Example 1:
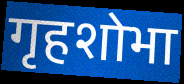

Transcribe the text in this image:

गृहशोभा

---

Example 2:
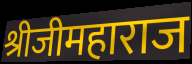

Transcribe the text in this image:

श्रीजीमहाराज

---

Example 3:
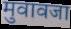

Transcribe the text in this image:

मुवावजा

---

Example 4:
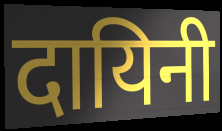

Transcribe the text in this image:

दायिनी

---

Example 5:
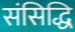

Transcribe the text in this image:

संसिद्धि